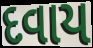
દવાય